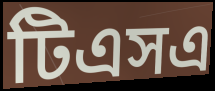
টিএসএ